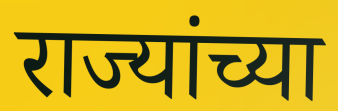
राज्यांच्या